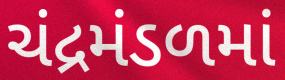
ચંદ્રમંડળમાં